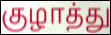
குழாத்து